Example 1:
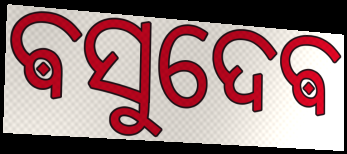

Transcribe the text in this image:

ଵସୁଦେଵ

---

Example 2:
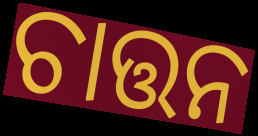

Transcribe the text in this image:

ଚାତ୍ତନ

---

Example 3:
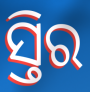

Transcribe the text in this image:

ସ୍ତିର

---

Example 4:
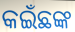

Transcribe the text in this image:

କଇଁଛଙ୍କ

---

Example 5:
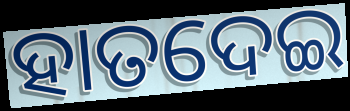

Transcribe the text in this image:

ହାତଦେଇ